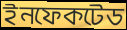
ইনফেকটেড